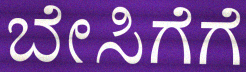
ಬೇಸಿಗೆಗೆ